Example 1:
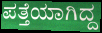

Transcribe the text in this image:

ಪತ್ತೆಯಾಗಿದ್ದ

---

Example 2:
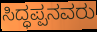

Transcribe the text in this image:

ಸಿದ್ಧಪ್ಪನವರು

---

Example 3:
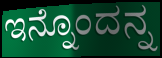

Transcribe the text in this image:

ಇನ್ನೊಂದನ್ನ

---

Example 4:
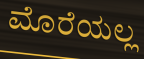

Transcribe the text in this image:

ಮೊರೆಯಲ್ಲ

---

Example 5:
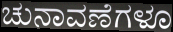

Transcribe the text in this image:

ಚುನಾವಣೆಗಳೂ